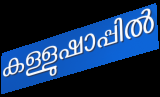
കള്ളുഷാപ്പിൽ